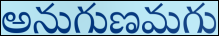
అనుగుణమగు